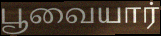
பூவையார்